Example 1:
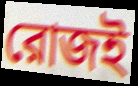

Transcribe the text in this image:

রোজই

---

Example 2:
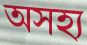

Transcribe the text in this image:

অসহ্য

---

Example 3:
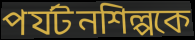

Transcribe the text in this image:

পর্যটনশিল্পকে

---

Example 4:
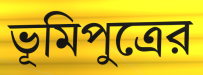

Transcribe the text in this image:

ভূমিপুত্রের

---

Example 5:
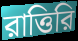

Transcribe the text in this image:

রাত্তিরি